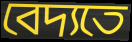
বেদ্যতে